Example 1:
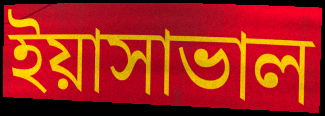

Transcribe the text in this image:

ইয়াসাভাল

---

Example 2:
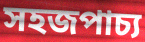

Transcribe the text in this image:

সহজপাচ্য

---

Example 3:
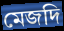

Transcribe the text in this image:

মেজদি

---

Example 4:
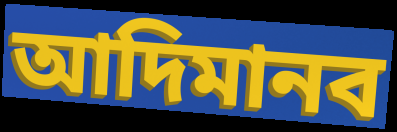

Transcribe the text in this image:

আদিমানব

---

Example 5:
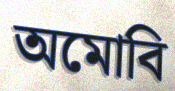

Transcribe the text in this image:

অমোবি